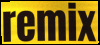
remix